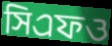
সিএফও